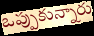
ఒప్పుకున్నారు